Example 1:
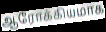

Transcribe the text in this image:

ஆரோக்கியமாக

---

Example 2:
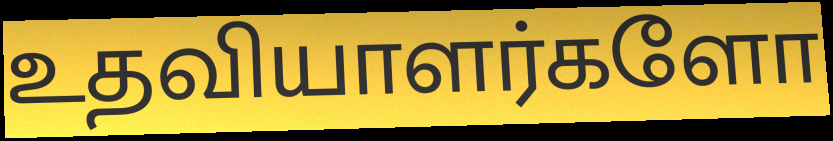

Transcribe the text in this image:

உதவியாளர்களோ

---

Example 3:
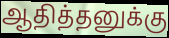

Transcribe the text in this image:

ஆதித்தனுக்கு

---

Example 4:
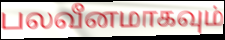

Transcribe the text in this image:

பலவீனமாகவும்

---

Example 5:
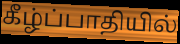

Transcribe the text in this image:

கீழ்ப்பாதியில்